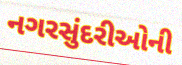
નગરસુંદરીઓની